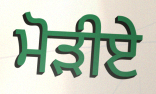
ਮੋੜੀਏ